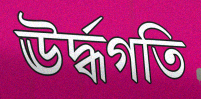
ঊর্দ্ধগতি